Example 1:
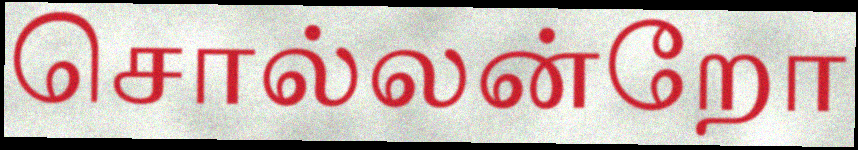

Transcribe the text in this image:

சொல்லன்றோ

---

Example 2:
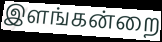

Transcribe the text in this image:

இளங்கன்றை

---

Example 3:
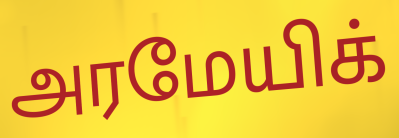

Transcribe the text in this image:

அரமேயிக்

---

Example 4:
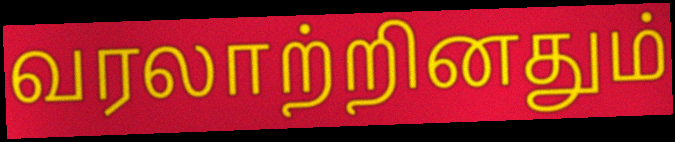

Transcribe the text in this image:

வரலாற்றினதும்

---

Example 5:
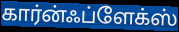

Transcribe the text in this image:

கார்ன்ஃப்ளேக்ஸ்